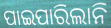
ପାଇପାରିଲାନି